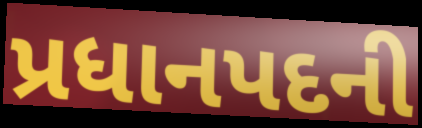
પ્રધાનપદની